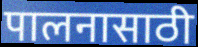
पालनासाठी